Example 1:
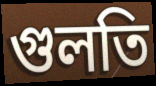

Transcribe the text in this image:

গুলতি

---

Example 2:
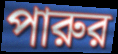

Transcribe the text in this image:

পারুর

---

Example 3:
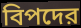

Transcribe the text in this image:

বিপদের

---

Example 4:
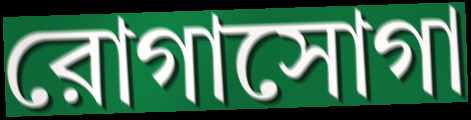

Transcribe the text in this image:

রোগাসোগা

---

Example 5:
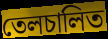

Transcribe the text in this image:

তেলচালিত